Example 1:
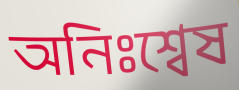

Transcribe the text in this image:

অনিঃশ্বেষ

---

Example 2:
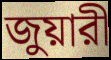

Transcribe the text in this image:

জুয়ারী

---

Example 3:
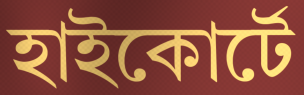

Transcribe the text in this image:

হাইকোর্টে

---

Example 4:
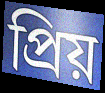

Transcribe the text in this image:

প্রিয়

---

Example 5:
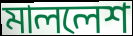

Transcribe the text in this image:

মাললেশ